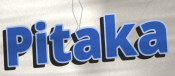
Pitaka